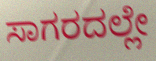
ಸಾಗರದಲ್ಲೇ